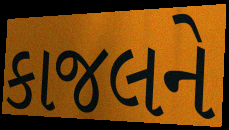
કાજલને